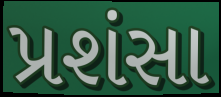
પ્રશંસા